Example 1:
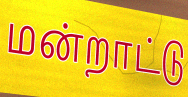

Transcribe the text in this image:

மன்றாட்டு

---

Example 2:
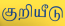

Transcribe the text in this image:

குறியீடு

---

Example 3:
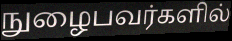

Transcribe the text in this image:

நுழைபவர்களில்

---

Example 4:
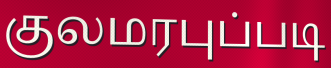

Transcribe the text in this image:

குலமரபுப்படி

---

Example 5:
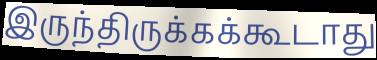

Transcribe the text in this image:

இருந்திருக்கக்கூடாது